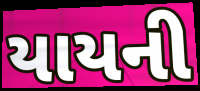
યાયની